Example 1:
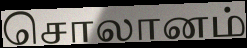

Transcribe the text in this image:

சொலானம்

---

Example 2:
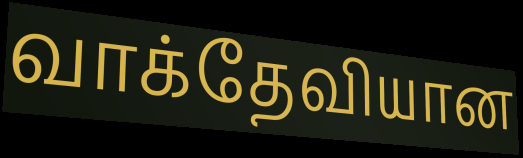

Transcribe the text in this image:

வாக்தேவியான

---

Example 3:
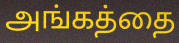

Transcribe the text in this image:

அங்கத்தை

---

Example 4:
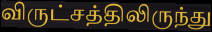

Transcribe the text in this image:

விருட்சத்திலிருந்து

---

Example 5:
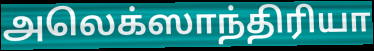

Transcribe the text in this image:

அலெக்ஸாந்திரியா